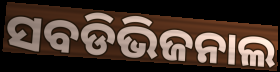
ସବଡିଭିଜନାଲ